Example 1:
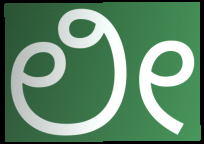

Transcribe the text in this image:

ಲೀ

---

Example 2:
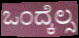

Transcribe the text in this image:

ಒಂದ್ಕೆಲ್ಸ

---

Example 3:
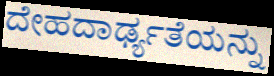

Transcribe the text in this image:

ದೇಹದಾರ್ಢ್ಯತೆಯನ್ನು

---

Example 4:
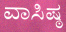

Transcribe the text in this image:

ವಾಸಿಷ್ಠ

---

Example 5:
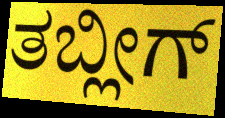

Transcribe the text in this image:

ತಬ್ಲೀಗ್